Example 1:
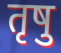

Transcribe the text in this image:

तृषु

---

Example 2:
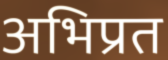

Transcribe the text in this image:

अभिप्रत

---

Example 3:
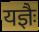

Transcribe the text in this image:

यज्ञैः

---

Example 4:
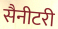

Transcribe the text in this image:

सैनीटरी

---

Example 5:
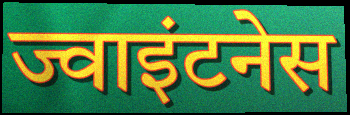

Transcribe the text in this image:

ज्वाइंटनेस